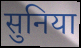
सुनिया